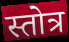
स्तोत्र